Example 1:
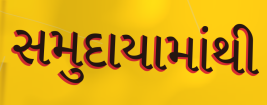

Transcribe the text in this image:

સમુદાયામાંથી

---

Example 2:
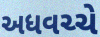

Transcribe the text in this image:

અધવચ્ચે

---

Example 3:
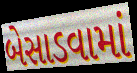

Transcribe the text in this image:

બેસાડવામાં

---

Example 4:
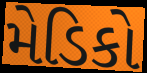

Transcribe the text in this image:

મેડિકો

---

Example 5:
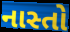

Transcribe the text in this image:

નાસ્તો